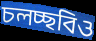
চলচ্ছবিও